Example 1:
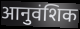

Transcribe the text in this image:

आनुवंशिक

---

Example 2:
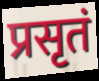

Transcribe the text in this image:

प्रसृतं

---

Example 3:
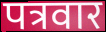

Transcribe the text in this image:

पत्रवार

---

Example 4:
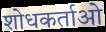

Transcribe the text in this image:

शोधकर्ताओ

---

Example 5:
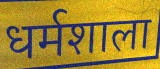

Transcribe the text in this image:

धर्मशाला